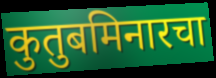
कुतुबमिनारचा